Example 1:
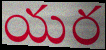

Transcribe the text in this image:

యర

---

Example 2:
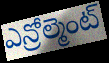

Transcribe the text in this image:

ఎన్రోల్మెంట్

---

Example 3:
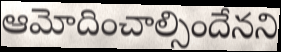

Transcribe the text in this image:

ఆమోదించాల్సిందేనని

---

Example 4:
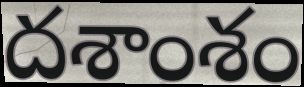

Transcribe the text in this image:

దశాంశం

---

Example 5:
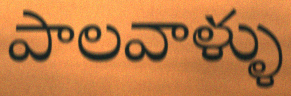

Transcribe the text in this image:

పాలవాళ్ళు